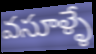
వసూళ్ళే